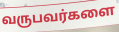
வருபவர்களை